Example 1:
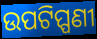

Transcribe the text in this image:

ଉପଟିପ୍ପଣୀ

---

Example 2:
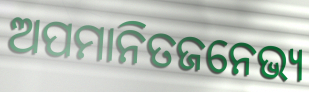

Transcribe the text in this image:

ଅପମାନିତଜନେଭ୍ୟ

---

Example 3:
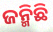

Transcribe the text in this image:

ଜନ୍ମିଛି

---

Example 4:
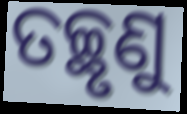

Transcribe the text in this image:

ତଚ୍ଛୃଣୁ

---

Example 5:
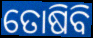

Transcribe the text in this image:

ତୋଷିବି